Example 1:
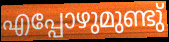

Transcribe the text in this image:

എപ്പോഴുമുണ്ടു്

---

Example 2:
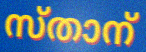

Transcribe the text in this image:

സ്താന്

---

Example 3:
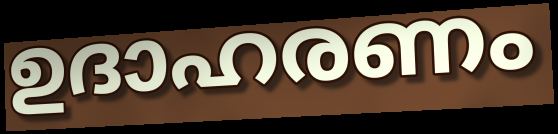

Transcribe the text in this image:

ഉദാഹരണം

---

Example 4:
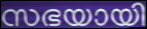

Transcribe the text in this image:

സഭയായി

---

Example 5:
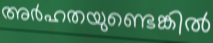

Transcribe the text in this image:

അർഹതയുണ്ടെങ്കിൽ